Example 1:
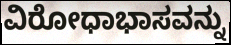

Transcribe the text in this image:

ವಿರೋಧಾಭಾಸವನ್ನು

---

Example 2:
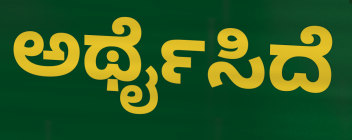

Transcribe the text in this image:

ಅರ್ಥೈಸಿದೆ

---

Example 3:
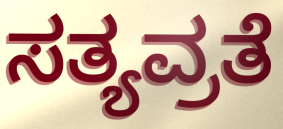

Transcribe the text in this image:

ಸತ್ಯವ್ರತೆ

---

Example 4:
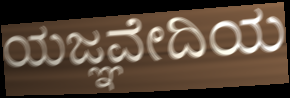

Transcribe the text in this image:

ಯಜ್ಞವೇದಿಯ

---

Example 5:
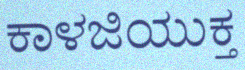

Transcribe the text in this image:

ಕಾಳಜಿಯುಕ್ತ